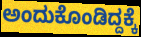
ಅಂದುಕೊಂಡಿದ್ದಕ್ಕೆ